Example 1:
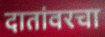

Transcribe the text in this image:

दातांवरचा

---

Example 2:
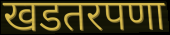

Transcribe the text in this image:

खडतरपणा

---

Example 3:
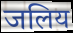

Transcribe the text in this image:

जलिय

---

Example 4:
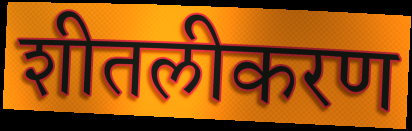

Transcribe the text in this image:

शीतलीकरण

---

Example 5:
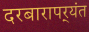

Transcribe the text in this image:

दरबारापर्यंत